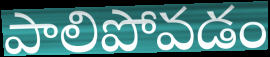
పాలిపోవడం